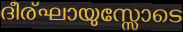
ദീര്ഘായുസ്സോടെ